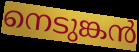
നെടുങ്കൻ